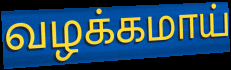
வழக்கமாய்